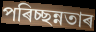
পৰিচ্ছন্নতাৰ